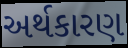
અર્થકારણ